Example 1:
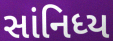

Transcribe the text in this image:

સાંનિધ્ય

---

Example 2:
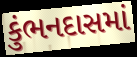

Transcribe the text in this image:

કુંભનદાસમાં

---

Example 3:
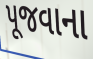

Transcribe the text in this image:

પૂજવાના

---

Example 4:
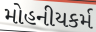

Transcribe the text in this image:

મોહનીયકર્મ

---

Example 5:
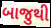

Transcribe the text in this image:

બાજુથી